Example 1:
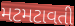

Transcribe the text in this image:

મટમટાવતી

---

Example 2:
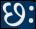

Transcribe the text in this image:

છઃ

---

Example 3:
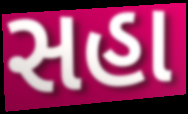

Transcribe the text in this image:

સહા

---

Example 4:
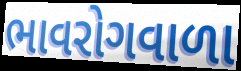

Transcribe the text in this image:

ભાવરોગવાળા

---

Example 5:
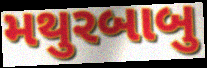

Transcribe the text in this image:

મથુરબાબુ